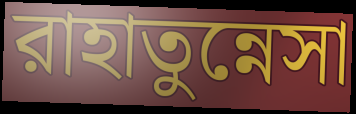
রাহাতুন্নেসা